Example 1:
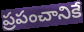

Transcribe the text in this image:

ప్రపంచానికే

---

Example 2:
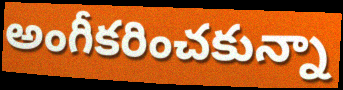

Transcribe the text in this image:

అంగీకరించకున్నా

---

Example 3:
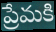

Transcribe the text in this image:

ప్రేమకి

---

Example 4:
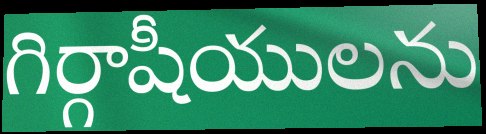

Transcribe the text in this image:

గిర్గాషీయులను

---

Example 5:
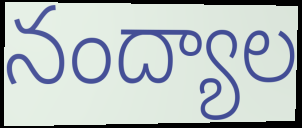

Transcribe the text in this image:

నంద్యాల